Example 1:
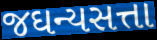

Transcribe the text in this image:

જઘન્યસત્તા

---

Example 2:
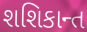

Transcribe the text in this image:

શશિકાન્ત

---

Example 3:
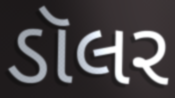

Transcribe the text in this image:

ડૉલર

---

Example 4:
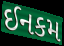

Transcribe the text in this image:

ઈનકમ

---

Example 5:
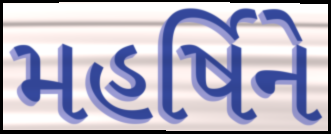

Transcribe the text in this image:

મહર્ષિને